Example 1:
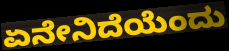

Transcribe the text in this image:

ಏನೇನಿದೆಯೆಂದು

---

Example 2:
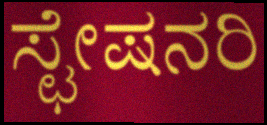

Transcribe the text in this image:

ಸ್ಟೇಷನರಿ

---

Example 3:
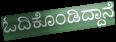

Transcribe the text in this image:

ಓದಿಕೊಂಡಿದ್ದಾನೆ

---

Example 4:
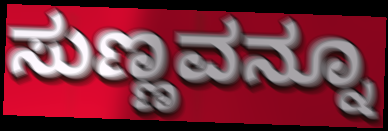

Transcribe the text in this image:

ಸುಣ್ಣವನ್ನೂ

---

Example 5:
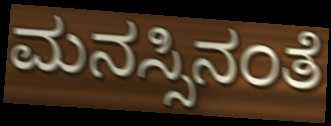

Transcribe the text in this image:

ಮನಸ್ಸಿನಂತೆ